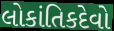
લોકાંતિકદેવો